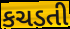
કચડતી